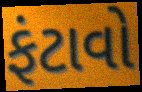
ફંટાવો